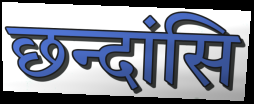
छन्दांसि